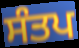
ਸੰਤਪ